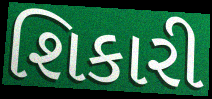
શિકારી